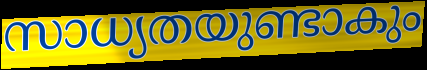
സാധ്യതയുണ്ടാകും